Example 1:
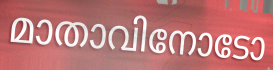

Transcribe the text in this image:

മാതാവിനോടോ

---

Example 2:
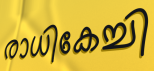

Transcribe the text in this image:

രാധികേച്ചി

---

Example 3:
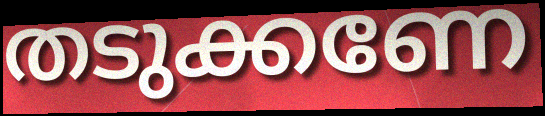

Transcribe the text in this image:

തടുക്കണേ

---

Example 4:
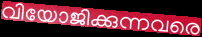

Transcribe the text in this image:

വിയോജിക്കുന്നവരെ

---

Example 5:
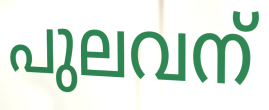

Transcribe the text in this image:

പുലവന്